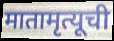
मातामृत्यूची